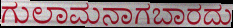
ಗುಲಾಮನಾಗಬಾರದು